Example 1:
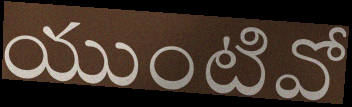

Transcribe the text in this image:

యుంటివో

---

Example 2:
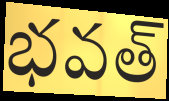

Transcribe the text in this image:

భవత్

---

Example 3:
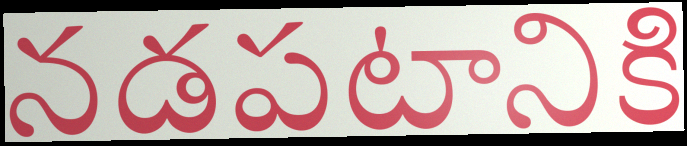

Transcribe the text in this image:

నడపటానికి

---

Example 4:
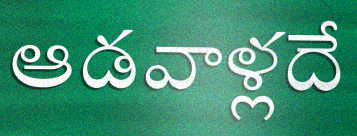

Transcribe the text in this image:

ఆడవాళ్లదే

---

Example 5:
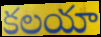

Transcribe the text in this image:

కలయా